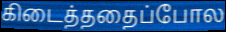
கிடைத்ததைப்போல